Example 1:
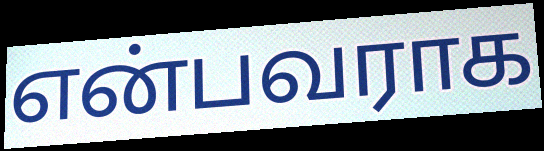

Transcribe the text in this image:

என்பவராக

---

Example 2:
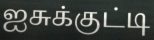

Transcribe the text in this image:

ஐசுக்குட்டி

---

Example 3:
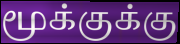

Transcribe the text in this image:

மூக்குக்கு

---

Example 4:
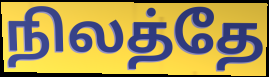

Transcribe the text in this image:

நிலத்தே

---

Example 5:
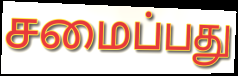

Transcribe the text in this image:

சமைப்பது